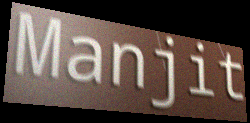
Manjit